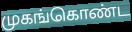
முகங்கொண்ட